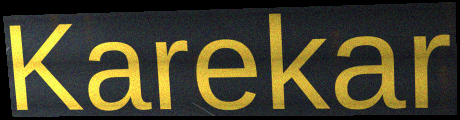
Karekar